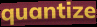
quantize